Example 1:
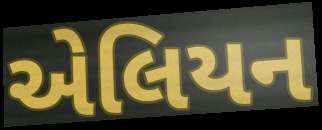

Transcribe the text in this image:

એલિયન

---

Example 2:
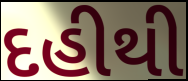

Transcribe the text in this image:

દહીથી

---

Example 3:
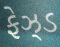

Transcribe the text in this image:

ફેઝ્ડ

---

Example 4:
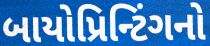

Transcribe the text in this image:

બાયોપ્રિન્ટિંગનો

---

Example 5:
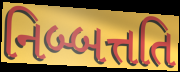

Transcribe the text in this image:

નિબ્બત્તતિ